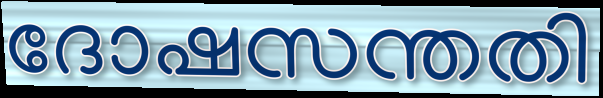
ദോഷസന്തതി